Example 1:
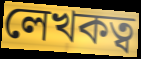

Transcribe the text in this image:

লেখকত্ব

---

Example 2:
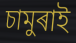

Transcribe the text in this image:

চামুৰাই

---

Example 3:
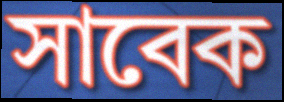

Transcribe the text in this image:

সাবেক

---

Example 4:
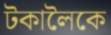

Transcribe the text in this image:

টকালৈকে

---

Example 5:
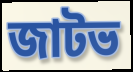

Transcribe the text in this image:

জাটভ